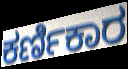
ಕರ್ಣಿಕಾರ